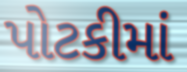
પોટકીમાં